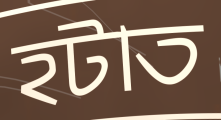
হটাত